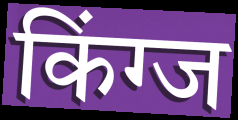
किंग्ज